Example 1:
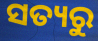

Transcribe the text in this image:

ସତ୍ୟରୁ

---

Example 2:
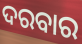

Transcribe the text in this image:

ଦରବାର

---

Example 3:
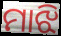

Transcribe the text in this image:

ମାଝି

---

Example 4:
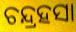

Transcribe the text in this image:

ଚନ୍ଦ୍ରହସା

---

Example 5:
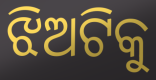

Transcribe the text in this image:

ଝିଅଟିକୁ